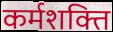
कर्मशक्ति